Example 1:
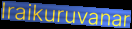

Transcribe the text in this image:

Iraikuruvanar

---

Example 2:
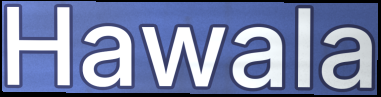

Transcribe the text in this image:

Hawala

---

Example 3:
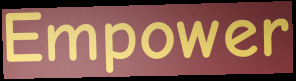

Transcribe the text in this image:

Empower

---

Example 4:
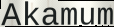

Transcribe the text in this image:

Akamum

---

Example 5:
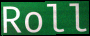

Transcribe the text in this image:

Roll